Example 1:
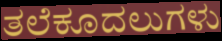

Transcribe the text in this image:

ತಲೆಕೂದಲುಗಳು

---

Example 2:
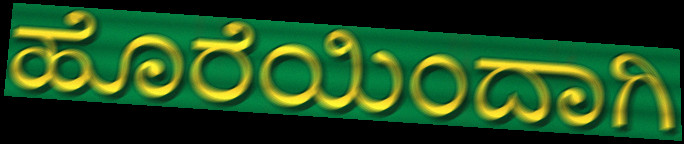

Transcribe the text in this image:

ಹೊರೆಯಿಂದಾಗಿ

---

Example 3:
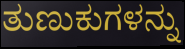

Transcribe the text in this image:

ತುಣುಕುಗಳನ್ನು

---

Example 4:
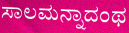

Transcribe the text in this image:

ಸಾಲಮನ್ನಾದಂಥ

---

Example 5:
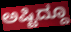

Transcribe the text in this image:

ಅಷ್ಟಿದ್ದೂ